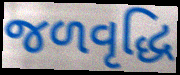
જળવૃદ્ધિ